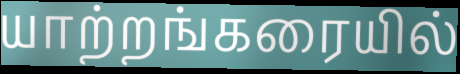
யாற்றங்கரையில்